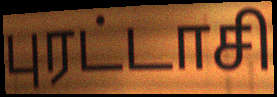
புரட்டாசி